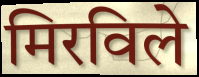
मिरविले